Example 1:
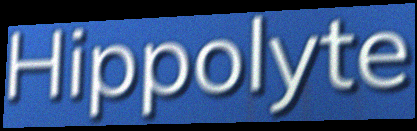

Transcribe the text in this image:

Hippolyte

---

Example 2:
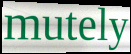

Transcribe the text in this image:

mutely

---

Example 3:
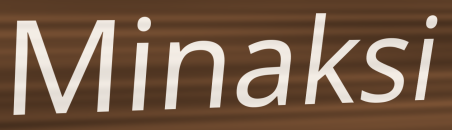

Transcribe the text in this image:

Minaksi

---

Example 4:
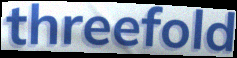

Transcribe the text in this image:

threefold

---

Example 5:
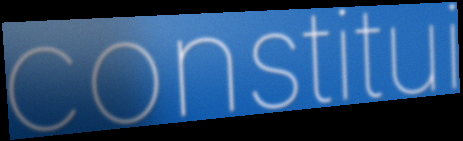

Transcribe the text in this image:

constitui